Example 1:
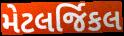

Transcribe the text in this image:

મેટલર્જિકલ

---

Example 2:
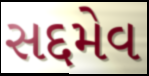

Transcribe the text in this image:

સદ્દમેવ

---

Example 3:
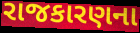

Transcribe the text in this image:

રાજકારણના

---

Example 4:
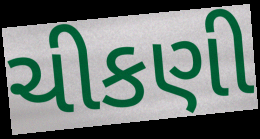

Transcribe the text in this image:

ચીકણી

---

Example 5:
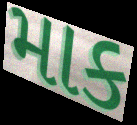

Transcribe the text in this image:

માક